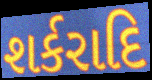
શર્કરાદિ